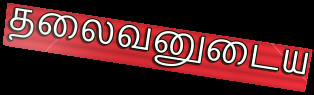
தலைவனுடைய